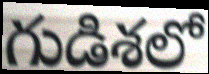
గుడిశలో